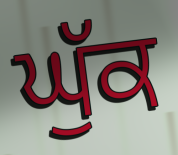
ਘੁੱਕ